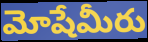
మోషేమీరు